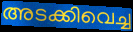
അടക്കിവെച്ച